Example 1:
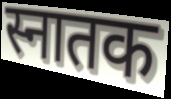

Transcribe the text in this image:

स्नातक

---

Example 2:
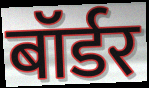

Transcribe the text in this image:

बॉर्डर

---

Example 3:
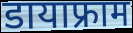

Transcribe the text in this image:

डायाफ्राम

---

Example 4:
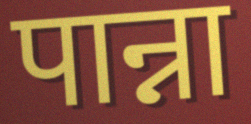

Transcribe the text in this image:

पान्ना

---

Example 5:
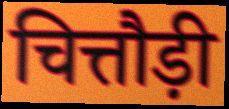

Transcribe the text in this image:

चित्तौड़ी